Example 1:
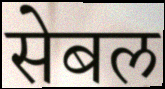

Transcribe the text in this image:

सेबल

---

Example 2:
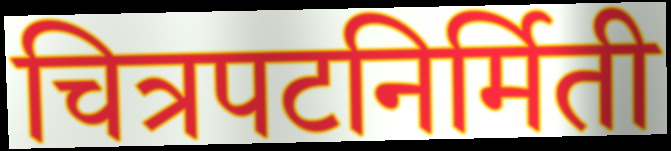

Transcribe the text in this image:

चित्रपटनिर्मिती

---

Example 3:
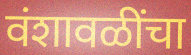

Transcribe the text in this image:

वंशावळींचा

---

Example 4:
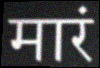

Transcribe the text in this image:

मारं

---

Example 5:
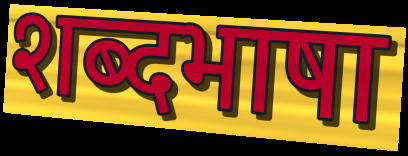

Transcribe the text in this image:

शब्दभाषा